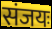
संजयः